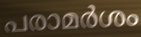
പരാമർശം